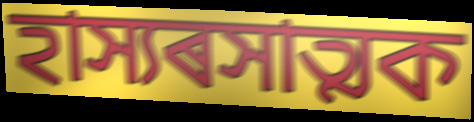
হাস্যৰসাত্মক